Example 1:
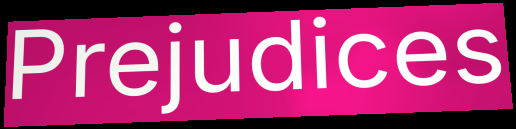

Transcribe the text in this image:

Prejudices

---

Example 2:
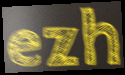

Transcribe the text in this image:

ezh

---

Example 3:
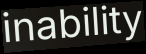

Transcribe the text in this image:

inability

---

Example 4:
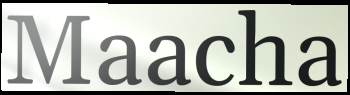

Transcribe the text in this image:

Maacha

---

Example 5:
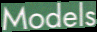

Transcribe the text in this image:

Models